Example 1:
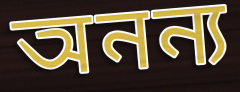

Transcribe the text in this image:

অনন্য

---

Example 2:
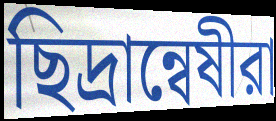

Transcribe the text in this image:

ছিদ্রান্বেষীরা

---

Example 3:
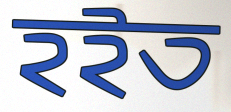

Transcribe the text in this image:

হইত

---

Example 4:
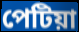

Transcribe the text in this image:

পেটিয়া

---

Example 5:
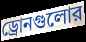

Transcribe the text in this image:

ড্রোনগুলোর